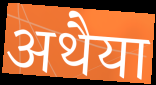
अथैया